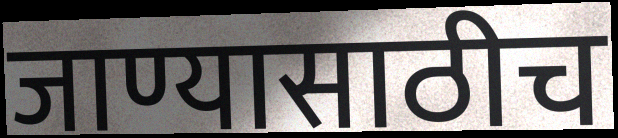
जाण्यासाठीच